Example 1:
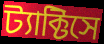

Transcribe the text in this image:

ট্যাক্টিসে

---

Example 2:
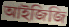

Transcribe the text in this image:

আইজিজি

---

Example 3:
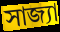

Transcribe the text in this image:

সাজ্যা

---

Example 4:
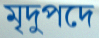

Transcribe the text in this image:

মৃদুপদে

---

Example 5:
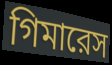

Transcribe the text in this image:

গিমারেস